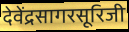
देवेंद्रसागरसूरिजी